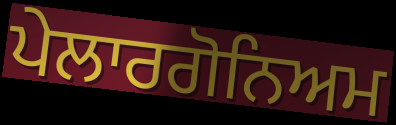
ਪੇਲਾਰਗੋਨਿਅਮ